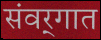
संवर्गात